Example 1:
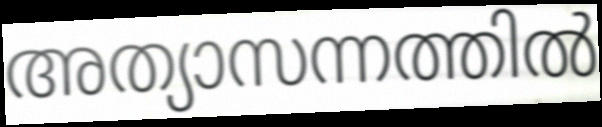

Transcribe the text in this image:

അത്യാസന്നത്തിൽ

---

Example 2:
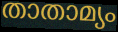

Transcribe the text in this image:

താതാമ്യം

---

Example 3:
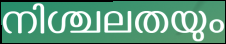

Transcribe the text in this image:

നിശ്ചലതയും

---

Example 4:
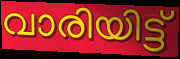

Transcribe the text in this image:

വാരിയിട്ട്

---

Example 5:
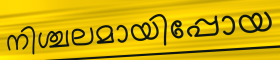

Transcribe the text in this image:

നിശ്ചലമായിപ്പോയ